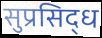
सुप्रसिद्ध